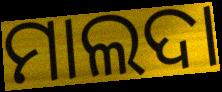
ମାଲଦା